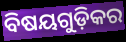
ବିଷୟଗୁଡ଼ିକର